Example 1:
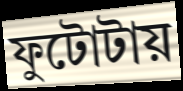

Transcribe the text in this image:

ফুটোটায়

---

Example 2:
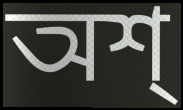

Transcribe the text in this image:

অশ্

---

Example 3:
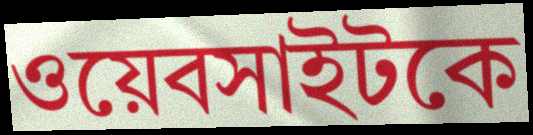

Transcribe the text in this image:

ওয়েবসাইটকে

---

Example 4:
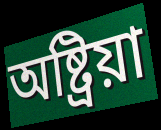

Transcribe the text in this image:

অষ্ট্রিয়া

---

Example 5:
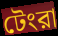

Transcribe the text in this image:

টেংরা